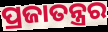
ପ୍ରଜାତନ୍ତ୍ରର